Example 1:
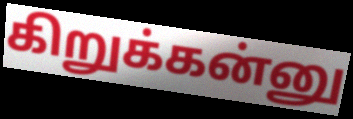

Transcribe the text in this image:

கிறுக்கன்னு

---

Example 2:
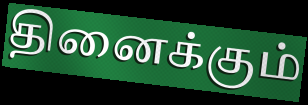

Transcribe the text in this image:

தினைக்கும்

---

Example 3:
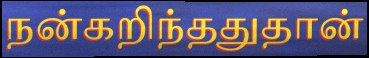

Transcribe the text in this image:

நன்கறிந்ததுதான்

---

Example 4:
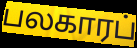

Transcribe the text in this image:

பலகாரப்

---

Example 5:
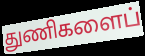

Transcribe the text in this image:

துணிகளைப்